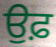
ਉਫ਼